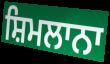
ਸ਼ਿਮਲਾਨਾ